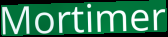
Mortimer